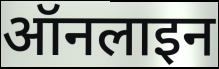
ऑनलाइन